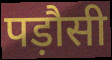
पड़ौसी